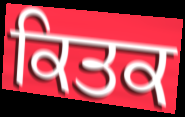
ਕਿਤਕ